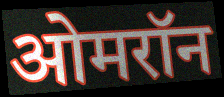
ओमरॉन